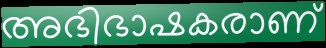
അഭിഭാഷകരാണ്